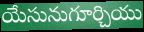
యేసునుగూర్చియు